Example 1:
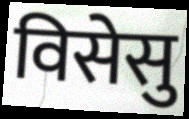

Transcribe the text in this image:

विसेसु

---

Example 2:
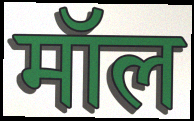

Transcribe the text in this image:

मॉल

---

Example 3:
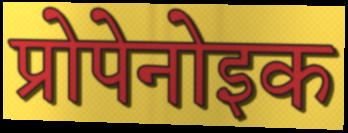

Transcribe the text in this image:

प्रोपेनोइक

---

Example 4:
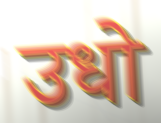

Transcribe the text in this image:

उधो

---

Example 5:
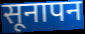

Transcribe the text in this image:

सूनापन